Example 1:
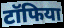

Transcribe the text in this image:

टॉफिया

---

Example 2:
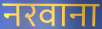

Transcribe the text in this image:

नरवाना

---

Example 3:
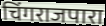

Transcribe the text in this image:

चिंगराजपारा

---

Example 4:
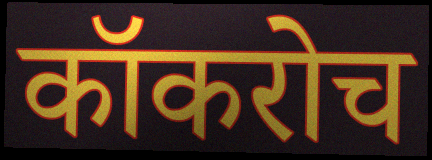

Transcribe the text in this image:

कॉकरोच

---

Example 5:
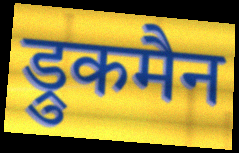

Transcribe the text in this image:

ड्रुकमैन